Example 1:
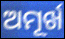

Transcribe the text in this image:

ଅମୂର୍ଖ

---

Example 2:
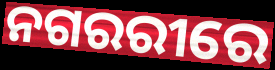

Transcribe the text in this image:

ନଗରରୀରେ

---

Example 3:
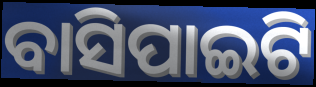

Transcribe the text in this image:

ବାସିପାଇଟି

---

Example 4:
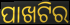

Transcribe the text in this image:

ପାଖଟିର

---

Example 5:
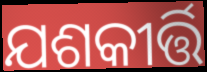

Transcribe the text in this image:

ଯଶକୀର୍ତ୍ତି